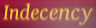
Indecency